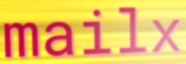
mailx